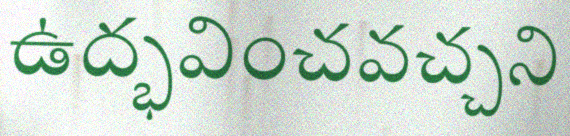
ఉద్భవించవచ్చని